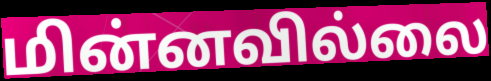
மின்னவில்லை